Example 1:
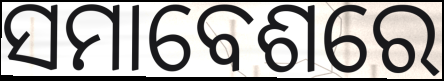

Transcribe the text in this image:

ସମାବେଶରେ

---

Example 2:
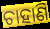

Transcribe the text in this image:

ଚାହାଣି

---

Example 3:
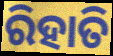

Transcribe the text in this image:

ରିହାତି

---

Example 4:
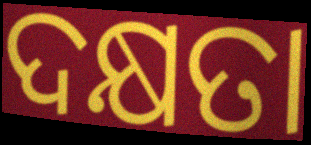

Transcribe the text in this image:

ଦକ୍ଷତା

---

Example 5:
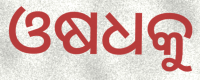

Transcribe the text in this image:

ଓଷଧକୁ